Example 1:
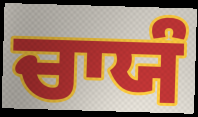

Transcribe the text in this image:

ਚਾਯੰ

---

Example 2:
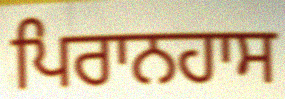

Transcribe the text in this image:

ਪਿਰਾਨਹਾਸ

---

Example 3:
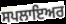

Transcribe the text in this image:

ਸਪਲਾਇਅਰ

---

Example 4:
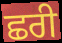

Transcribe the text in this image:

ਛਰੀ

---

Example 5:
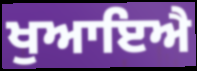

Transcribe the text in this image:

ਖੁਆਇਐ